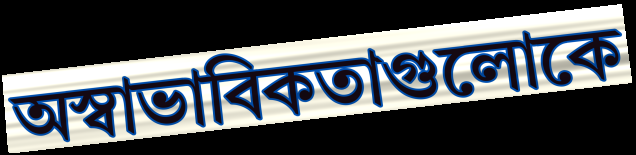
অস্বাভাবিকতাগুলোকে